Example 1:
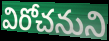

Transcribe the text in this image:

విరోచనుని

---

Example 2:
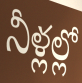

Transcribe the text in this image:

నీళ్లల్లో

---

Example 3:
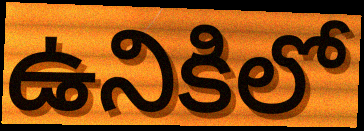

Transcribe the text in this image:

ఉనికిలో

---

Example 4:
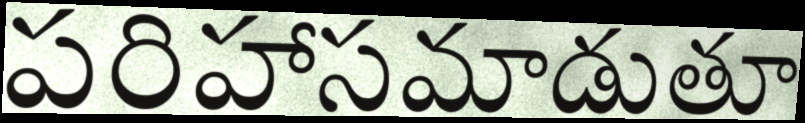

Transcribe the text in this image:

పరిహాసమాడుతూ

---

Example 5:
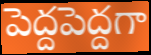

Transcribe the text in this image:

పెద్దపెద్దగా